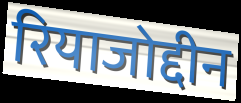
रियाजोद्दीन